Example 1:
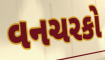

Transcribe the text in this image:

વનચરકો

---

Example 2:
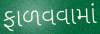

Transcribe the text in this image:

ફાળવવામાં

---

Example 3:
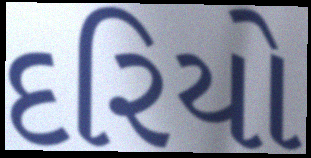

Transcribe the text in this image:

દરિયો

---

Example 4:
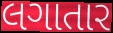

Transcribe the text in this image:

લગાતાર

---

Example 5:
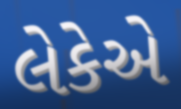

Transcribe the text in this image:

લેકેએ